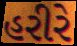
હરીરે